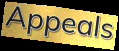
Appeals